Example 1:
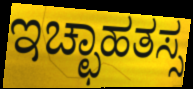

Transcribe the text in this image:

ಇಚ್ಛಾಹತಸ್ಸ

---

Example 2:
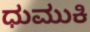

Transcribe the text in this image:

ಧುಮುಕಿ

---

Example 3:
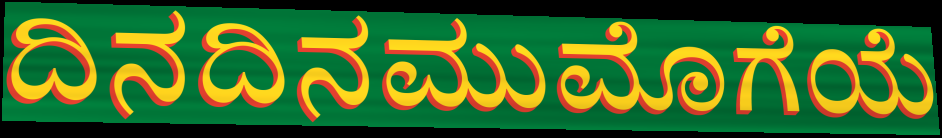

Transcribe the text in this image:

ದಿನದಿನಮುಮೊಗೆಯೆ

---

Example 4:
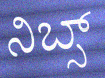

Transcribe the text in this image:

ನಿಬ್ಸ್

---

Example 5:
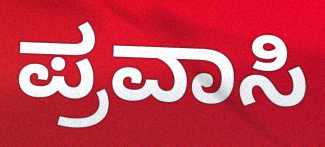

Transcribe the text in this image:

ಪ್ರವಾಸಿ